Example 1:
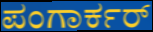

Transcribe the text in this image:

ಪಂಗಾರ್ಕರ್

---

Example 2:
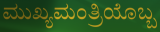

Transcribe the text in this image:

ಮುಖ್ಯಮಂತ್ರಿಯೊಬ್ಬ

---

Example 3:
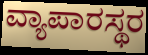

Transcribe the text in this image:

ವ್ಯಾಪಾರಸ್ಥರ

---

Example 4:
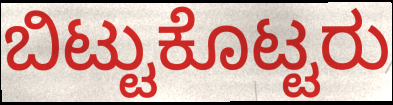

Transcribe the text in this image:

ಬಿಟ್ಟುಕೊಟ್ಟರು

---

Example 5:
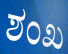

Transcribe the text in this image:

ಶಂಖ